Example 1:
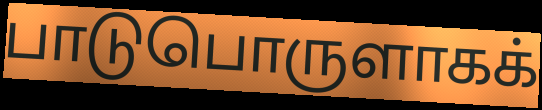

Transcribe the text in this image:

பாடுபொருளாகக்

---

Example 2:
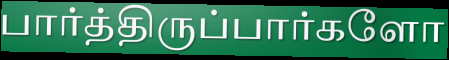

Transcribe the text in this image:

பார்த்திருப்பார்களோ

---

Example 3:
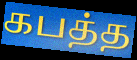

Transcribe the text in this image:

கபத்த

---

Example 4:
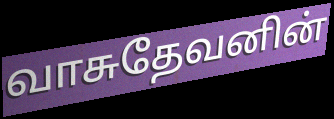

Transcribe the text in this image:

வாசுதேவனின்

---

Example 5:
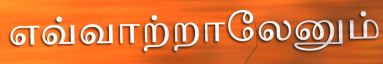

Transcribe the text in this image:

எவ்வாற்றாலேனும்